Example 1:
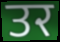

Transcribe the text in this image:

उर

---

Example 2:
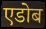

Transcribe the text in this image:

एडोब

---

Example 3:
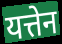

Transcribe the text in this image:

यत्तेन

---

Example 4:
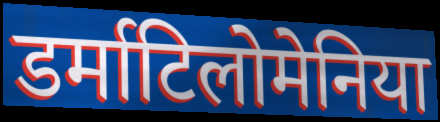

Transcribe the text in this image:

डर्माटिलोमेनिया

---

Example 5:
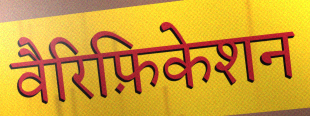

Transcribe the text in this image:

वैरिफ़िकेशन